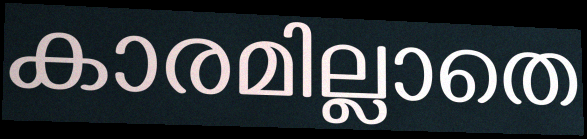
കാരമില്ലാതെ